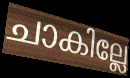
ചാകില്ലേ